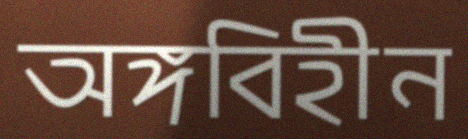
অঙ্গবিহীন